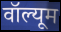
वॉल्यूम